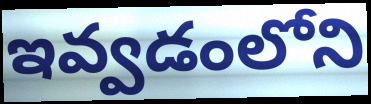
ఇవ్వడంలోని